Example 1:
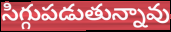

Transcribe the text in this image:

సిగ్గుపడుతున్నావు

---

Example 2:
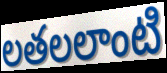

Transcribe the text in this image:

లతలలాంటి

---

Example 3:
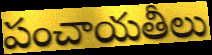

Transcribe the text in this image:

పంచాయతీలు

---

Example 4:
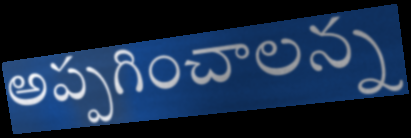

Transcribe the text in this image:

అప్పగించాలన్న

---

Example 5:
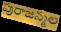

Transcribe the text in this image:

పురాజన్మల